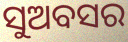
ସୁଅବସର